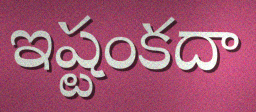
ఇష్టంకదా